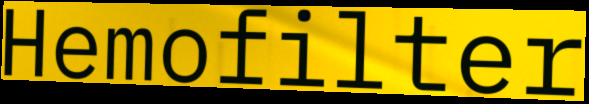
Hemofilter